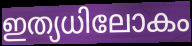
ഇത്യധിലോകം